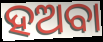
ହଅବା